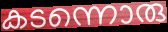
കടന്നൊരു